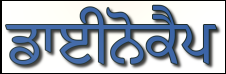
ਡਾਈਨੋਕੈਪ